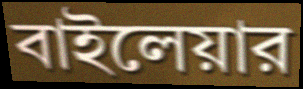
বাইলেয়ার